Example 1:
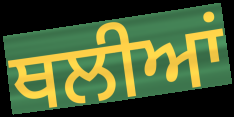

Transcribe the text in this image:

ਥਲੀਆਂ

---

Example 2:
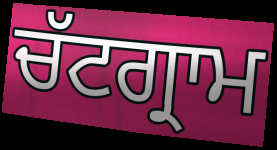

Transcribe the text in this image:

ਚੱਟਗ੍ਰਾਮ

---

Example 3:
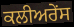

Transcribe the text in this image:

ਕਲੀਅਰੇਂਸ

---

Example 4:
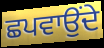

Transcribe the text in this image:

ਛਪਵਾਉਂਦੇ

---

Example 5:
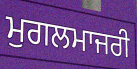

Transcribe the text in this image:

ਮੁਗਲਮਾਜਰੀ